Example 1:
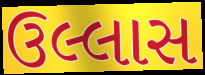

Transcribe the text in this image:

ઉલ્લાસ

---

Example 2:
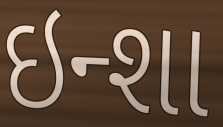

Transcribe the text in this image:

ઇન્શા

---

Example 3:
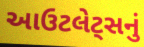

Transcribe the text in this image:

આઉટલેટ્સનું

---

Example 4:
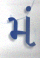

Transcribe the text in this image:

મં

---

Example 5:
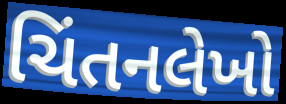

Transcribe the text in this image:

ચિંતનલેખો